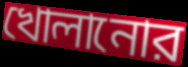
খোলানোর